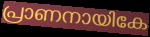
പ്രാണനായികേ